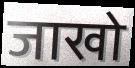
जाखो